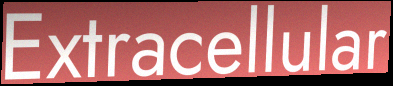
Extracellular